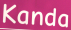
Kanda